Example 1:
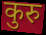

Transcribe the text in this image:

कुरु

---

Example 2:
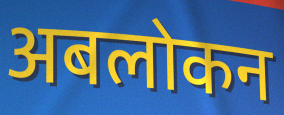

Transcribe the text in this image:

अबलोकन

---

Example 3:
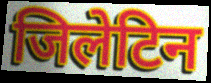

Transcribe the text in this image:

जिलेटिन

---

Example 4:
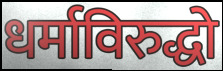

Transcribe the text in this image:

धर्माविरुद्धो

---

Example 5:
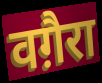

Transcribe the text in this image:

वग़ैरा